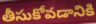
తీసుకోవడానికి